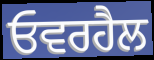
ਓਵਰਹੈਲ